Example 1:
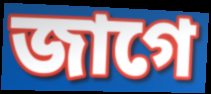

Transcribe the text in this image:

জাগে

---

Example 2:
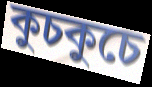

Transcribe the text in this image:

কুচকুচে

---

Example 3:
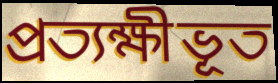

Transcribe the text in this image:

প্রত্যক্ষীভূত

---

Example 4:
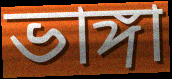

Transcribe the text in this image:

ভাঙ্গা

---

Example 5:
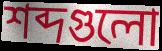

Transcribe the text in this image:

শব্দগুলো